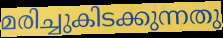
മരിച്ചുകിടക്കുന്നതു